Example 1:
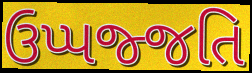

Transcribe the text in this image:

ઉપ્પજ્જતિ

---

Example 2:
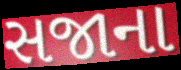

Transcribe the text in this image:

સજાના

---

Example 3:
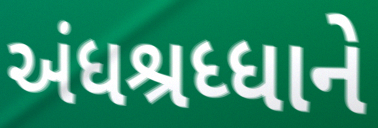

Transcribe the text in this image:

અંધશ્રધ્ધાને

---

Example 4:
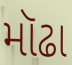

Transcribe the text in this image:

મૉઢા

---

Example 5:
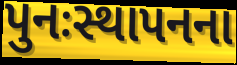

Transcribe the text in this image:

પુનઃસ્થાપનના